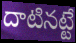
దాటినట్టే